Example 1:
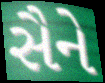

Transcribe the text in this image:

સૈને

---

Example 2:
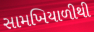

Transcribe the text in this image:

સામખિયાળીથી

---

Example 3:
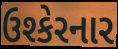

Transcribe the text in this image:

ઉશ્કેરનાર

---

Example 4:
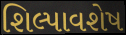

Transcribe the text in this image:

શિલ્પાવશેષ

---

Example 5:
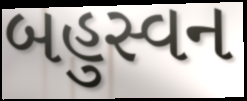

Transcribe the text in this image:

બહુસ્વન